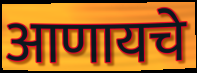
आणायचे